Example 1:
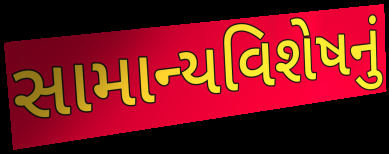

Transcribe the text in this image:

સામાન્યવિશેષનું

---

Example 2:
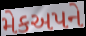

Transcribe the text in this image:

મેકઅપને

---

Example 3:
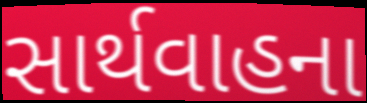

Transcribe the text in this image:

સાર્થવાહના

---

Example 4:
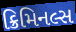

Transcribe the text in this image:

ક્રિમિનલ્સ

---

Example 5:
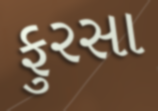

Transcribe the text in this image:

ફુરસા